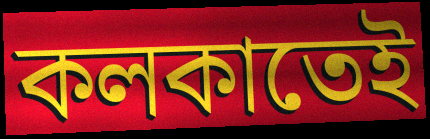
কলকাতেই